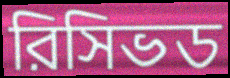
রিসিভড